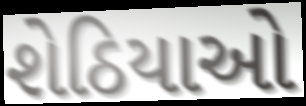
શેઠિયાઓ